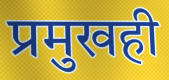
प्रमुखही